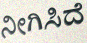
ನೀಗಿಸಿದೆ